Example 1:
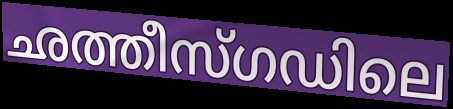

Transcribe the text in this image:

ഛത്തീസ്ഗഡിലെ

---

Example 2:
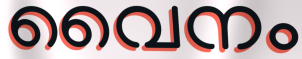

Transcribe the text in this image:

വൈനം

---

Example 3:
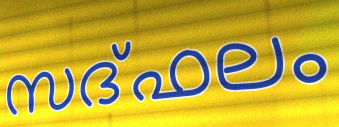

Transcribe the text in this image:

സദ്ഫലം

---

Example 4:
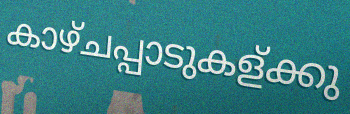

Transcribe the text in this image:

കാഴ്ചപ്പാടുകള്ക്കു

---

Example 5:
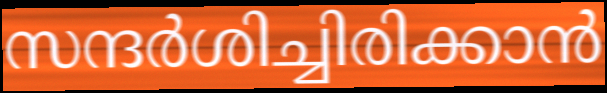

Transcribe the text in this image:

സന്ദർശിച്ചിരിക്കാൻ